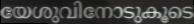
യേശുവിനോടുകൂടെ